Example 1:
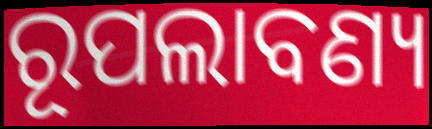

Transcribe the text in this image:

ରୂପଲାବଣ୍ୟ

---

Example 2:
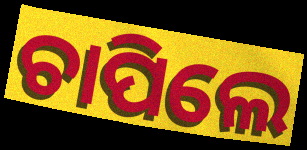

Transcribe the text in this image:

ଚାପିଲେ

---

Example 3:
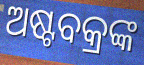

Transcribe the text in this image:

ଅଷ୍ଟବକ୍ରଙ୍କ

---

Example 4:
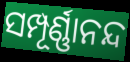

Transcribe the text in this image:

ସମ୍ପୂର୍ଣ୍ଣାନନ୍ଦ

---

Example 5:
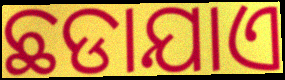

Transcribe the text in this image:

ଛଡାଯାଏ